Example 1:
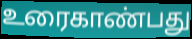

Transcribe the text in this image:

உரைகாண்பது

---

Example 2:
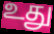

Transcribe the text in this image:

உது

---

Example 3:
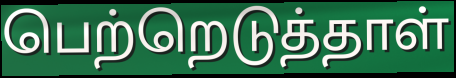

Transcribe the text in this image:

பெற்றெடுத்தாள்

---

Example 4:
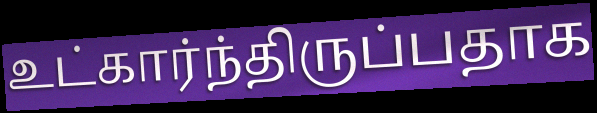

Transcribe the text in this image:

உட்கார்ந்திருப்பதாக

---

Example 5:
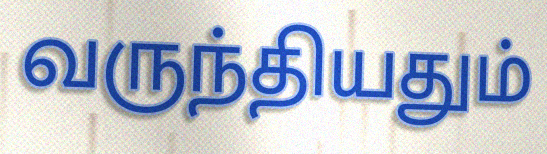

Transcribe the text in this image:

வருந்தியதும்